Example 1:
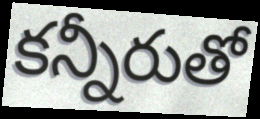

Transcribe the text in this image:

కన్నీరుతో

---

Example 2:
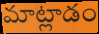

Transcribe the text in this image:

మాట్లాడం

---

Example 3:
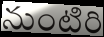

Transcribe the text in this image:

నుంటిరి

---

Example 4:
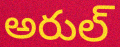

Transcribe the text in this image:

అరుల్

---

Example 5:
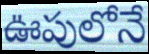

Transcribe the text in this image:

ఊపులోనే